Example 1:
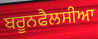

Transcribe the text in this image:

ਬਰੂਨਫੈਲਸੀਆ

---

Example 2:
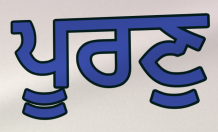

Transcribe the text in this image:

ਪੂਰਣੁ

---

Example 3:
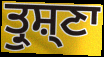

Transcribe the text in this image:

ਤ੍ਰੁਸ਼੍ਣਾ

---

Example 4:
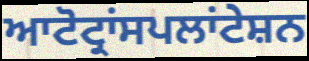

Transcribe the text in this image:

ਆਟੋਟ੍ਰਾਂਸਪਲਾਂਟੇਸ਼ਨ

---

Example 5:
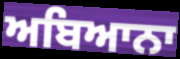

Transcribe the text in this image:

ਅਬਿਆਨਾ